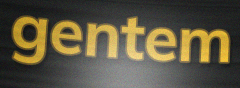
gentem